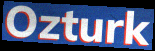
Ozturk